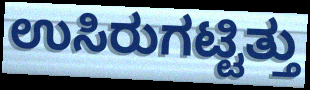
ಉಸಿರುಗಟ್ಟಿತ್ತು